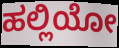
ಹಲ್ಲಿಯೋ